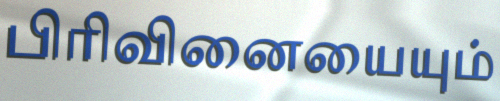
பிரிவினையையும்